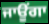
ਜਾਊਂਗਾ